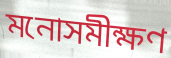
মনোসমীক্ষণ